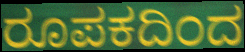
ರೂಪಕದಿಂದ